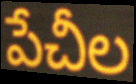
పేచీల